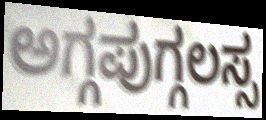
ಅಗ್ಗಪುಗ್ಗಲಸ್ಸ